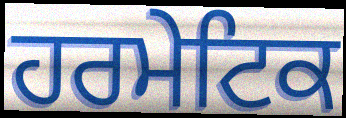
ਹਰਮੇਟਿਕ